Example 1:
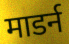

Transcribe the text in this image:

माडर्न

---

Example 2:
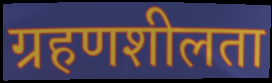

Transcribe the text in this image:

ग्रहणशीलता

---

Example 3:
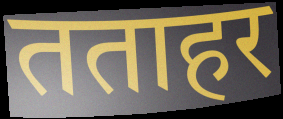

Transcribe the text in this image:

तताहर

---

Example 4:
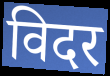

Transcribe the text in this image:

विदर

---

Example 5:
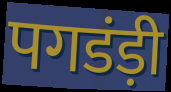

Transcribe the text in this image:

पगडंड़ी